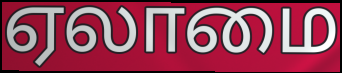
ஏலாமை